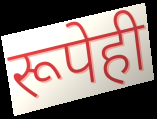
रूपेही